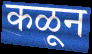
कळून